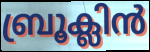
ബ്രൂക്ലിൻ